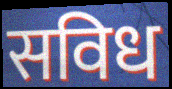
सविध